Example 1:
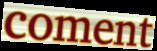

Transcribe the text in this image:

coment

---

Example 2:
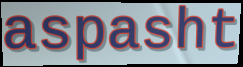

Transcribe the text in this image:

aspasht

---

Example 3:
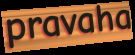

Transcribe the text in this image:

pravaha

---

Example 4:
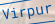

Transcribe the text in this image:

Virpur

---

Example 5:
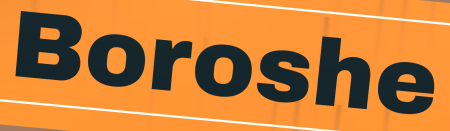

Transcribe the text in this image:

Boroshe